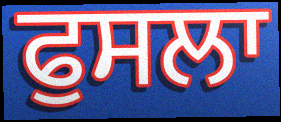
ਫੁਸਲਾ